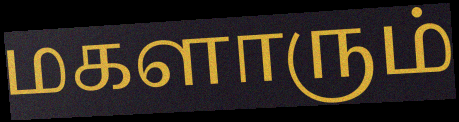
மகளாரும்